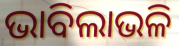
ଭାବିଲାଭଳି